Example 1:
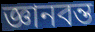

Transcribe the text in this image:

জ্ঞানবন্ত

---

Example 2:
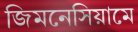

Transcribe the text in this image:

জিমনেসিয়ামে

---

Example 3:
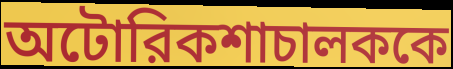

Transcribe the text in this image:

অটোরিকশাচালককে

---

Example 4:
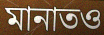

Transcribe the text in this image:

মানাতও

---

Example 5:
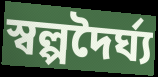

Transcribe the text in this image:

স্বল্পদৈর্ঘ্য